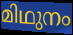
മിഥുനം